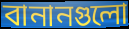
বানানগুলো